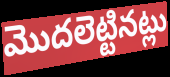
మొదలెట్టినట్లు